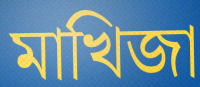
মাখিজা